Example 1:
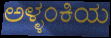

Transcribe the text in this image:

ಅಳ್ಳಂಕಿಯ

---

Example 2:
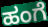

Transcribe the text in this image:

ಹಂಗೆ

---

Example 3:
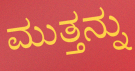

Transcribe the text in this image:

ಮುತ್ತನ್ನು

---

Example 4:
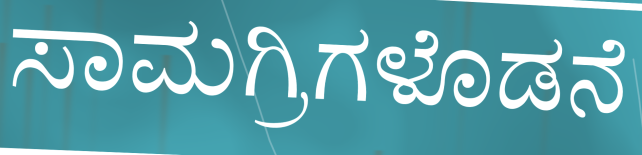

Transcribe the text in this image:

ಸಾಮಗ್ರಿಗಳೊಡನೆ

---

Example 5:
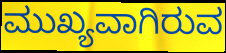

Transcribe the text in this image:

ಮುಖ್ಯವಾಗಿರುವ